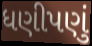
ધણીપણું